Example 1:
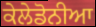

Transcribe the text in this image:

ਕੇਲੇਡੋਨੀਆ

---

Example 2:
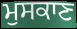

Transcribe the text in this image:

ਮੁਸਕਾਣ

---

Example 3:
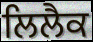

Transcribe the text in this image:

ਲਿਲੈਕ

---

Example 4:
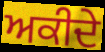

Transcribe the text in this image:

ਅਕੀਦੇ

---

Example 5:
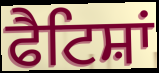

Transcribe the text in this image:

ਫੈਟਿਸ਼ਾਂ